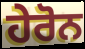
ਹੇਰੋਨ